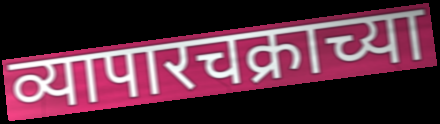
व्यापारचक्राच्या